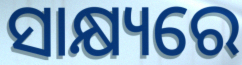
ସାକ୍ଷ୍ୟରେ